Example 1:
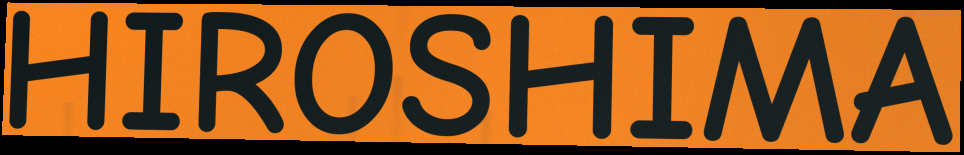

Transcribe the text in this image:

HIROSHIMA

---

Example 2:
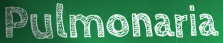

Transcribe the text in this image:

Pulmonaria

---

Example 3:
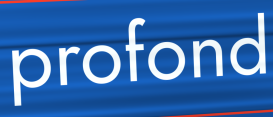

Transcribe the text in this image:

profond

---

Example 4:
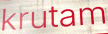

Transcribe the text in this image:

krutam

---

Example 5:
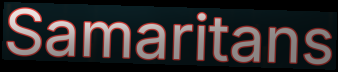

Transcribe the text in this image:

Samaritans